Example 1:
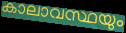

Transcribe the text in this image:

കാലാവസ്ഥയും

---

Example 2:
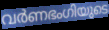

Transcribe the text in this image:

വർണഭംഗിയുടെ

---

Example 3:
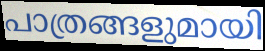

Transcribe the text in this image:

പാത്രങ്ങളുമായി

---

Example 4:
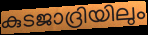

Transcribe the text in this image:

കുടജാദ്രിയിലും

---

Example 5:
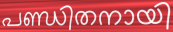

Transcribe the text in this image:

പണ്ഡിതനായി